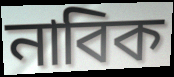
নাবিক